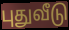
புதுவீடு